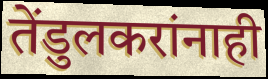
तेंडुलकरांनाही